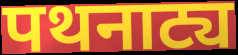
पथनाट्य